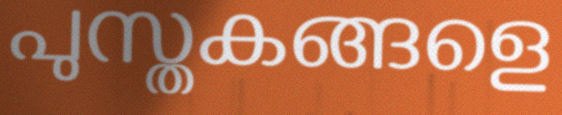
പുസ്തകങ്ങളെ